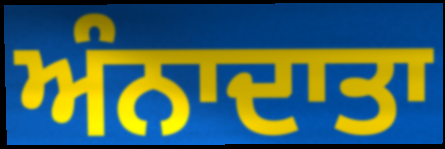
ਅੰਨਾਦਾਤਾ